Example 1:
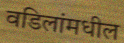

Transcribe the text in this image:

वडिलांमधील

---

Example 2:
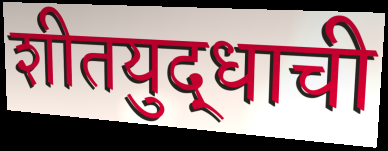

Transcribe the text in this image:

शीतयुद्धाची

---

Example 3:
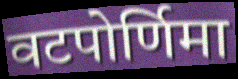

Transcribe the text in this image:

वटपोर्णिमा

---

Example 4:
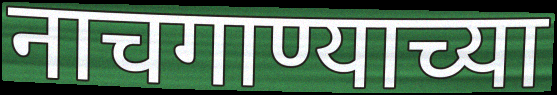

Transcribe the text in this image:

नाचगाण्याच्या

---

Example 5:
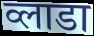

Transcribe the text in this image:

व्लाडा